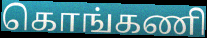
கொங்கணி